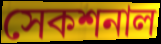
সেকশনাল